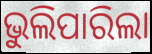
ଭୁଲିପାରିଲା